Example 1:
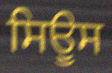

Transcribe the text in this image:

ਸਿਊਸ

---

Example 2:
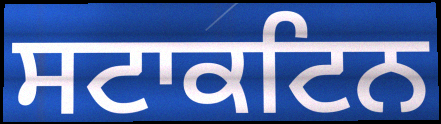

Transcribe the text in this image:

ਸਟਾਕਟਿਨ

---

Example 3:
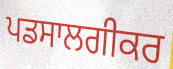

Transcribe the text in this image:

ਪਡਸਾਲਗੀਕਰ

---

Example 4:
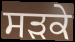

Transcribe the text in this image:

ਸਡ਼ਕੇ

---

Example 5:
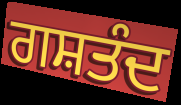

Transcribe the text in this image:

ਗਸ਼ਤੰਦ